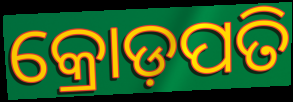
କ୍ରୋଡ଼ପତି